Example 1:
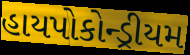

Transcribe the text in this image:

હાયપોકોન્ડ્રીયમ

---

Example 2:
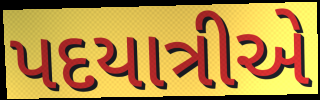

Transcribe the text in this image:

પદયાત્રીએ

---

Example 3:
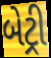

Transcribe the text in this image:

બેટ્રી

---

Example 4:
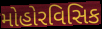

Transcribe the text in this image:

મોહોરવિસિક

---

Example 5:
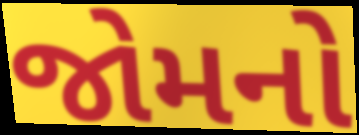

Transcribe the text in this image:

જોમનો